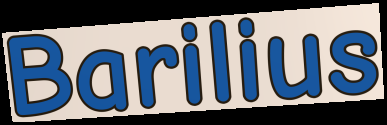
Barilius